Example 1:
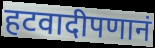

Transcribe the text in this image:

हटवादीपणानं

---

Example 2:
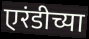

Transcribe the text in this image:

एरंडीच्या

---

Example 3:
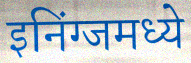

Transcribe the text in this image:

इनिंग्जमध्ये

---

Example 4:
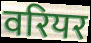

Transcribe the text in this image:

वरियर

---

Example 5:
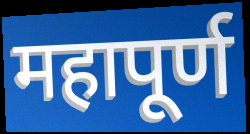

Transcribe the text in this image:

महापूर्ण